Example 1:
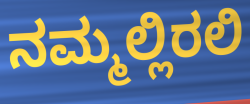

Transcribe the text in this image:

ನಮ್ಮಲ್ಲಿರಲಿ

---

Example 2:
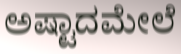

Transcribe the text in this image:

ಅಷ್ಟಾದಮೇಲೆ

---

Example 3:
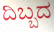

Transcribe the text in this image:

ದಿಬ್ಬದ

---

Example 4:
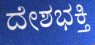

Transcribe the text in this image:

ದೇಶಭಕ್ತಿ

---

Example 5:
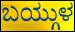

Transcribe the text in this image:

ಬಯ್ಗುಳ